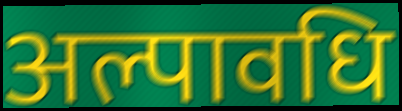
अल्पावधि